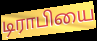
டிராபியை